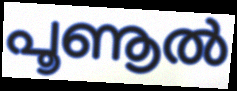
പൂണൂൽ